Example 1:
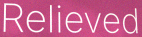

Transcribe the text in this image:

Relieved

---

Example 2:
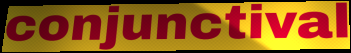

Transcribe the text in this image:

conjunctival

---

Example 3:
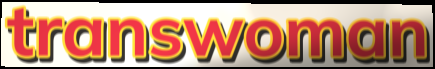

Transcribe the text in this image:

transwoman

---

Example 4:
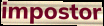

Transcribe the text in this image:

impostor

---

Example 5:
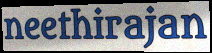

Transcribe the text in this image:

neethirajan